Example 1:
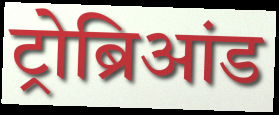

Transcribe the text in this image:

ट्रोब्रिआंड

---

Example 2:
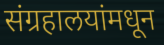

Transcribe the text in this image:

संग्रहालयांमधून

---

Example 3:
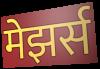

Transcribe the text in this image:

मेझर्स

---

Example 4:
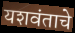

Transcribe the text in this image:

यशवंताचे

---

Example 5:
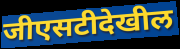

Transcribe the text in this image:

जीएसटीदेखील